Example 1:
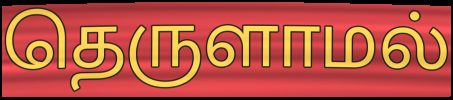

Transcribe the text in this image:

தெருளாமல்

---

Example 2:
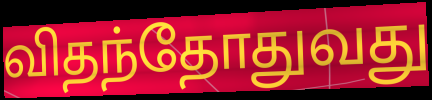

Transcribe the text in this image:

விதந்தோதுவது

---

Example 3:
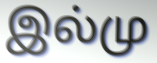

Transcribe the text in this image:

இல்மு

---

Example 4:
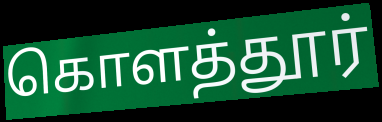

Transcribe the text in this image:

கொளத்தூர்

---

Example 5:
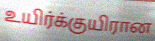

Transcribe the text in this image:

உயிர்க்குயிரான